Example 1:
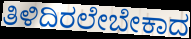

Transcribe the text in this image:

ತಿಳಿದಿರಲೇಬೇಕಾದ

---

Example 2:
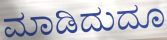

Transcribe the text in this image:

ಮಾಡಿದುದೂ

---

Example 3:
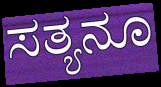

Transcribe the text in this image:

ಸತ್ಯನೂ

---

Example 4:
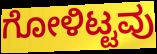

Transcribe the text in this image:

ಗೋಳಿಟ್ಟವು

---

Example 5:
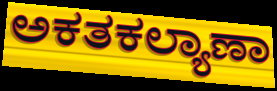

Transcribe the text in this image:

ಅಕತಕಲ್ಯಾಣಾ